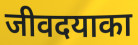
जीवदयाका